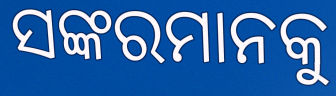
ସଙ୍କରମାନକୁ